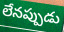
లేనప్పుడు